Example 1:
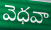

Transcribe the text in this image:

వెధవా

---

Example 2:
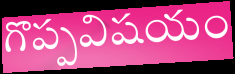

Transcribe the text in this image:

గొప్పవిషయం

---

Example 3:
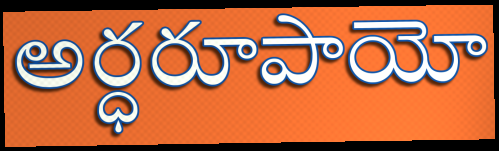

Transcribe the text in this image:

అర్ధరూపాయో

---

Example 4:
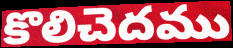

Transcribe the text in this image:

కొలిచెదము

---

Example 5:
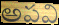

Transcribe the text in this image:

అపవి